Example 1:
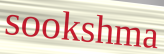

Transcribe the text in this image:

sookshma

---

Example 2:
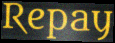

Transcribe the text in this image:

Repay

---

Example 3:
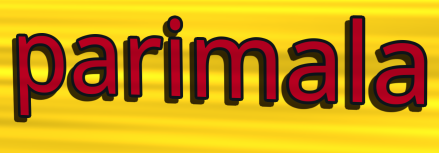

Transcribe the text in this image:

parimala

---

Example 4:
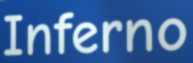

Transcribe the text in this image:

Inferno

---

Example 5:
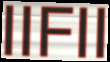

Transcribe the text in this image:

IIFII